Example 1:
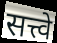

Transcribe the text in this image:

सत्त्वे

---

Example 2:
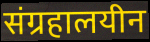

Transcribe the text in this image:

संग्रहालयीन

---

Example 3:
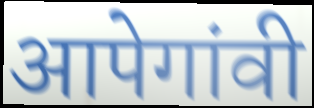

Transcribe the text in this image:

आपेगांवी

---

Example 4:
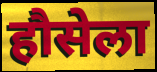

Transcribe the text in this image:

हौसेला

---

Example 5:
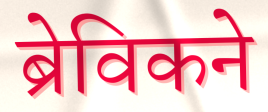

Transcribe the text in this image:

ब्रेविकने